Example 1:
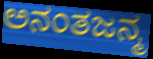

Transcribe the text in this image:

ಅನಂತಜನ್ಮ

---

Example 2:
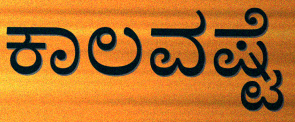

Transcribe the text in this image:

ಕಾಲವಷ್ಟೆ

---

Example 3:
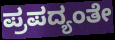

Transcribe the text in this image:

ಪ್ರಪದ್ಯಂತೇ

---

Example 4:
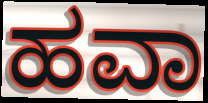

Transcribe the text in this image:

ಹವಾ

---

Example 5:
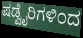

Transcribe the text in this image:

ಷಡ್ವೈರಿಗಳಿಂದ